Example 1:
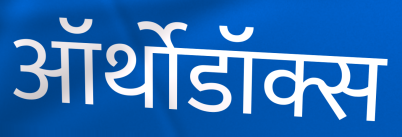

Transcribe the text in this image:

ऑर्थोडॉक्स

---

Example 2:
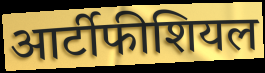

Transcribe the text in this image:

आर्टीफीशियल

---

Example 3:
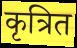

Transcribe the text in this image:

कृत्रित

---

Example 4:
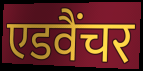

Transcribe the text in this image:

एडवैंचर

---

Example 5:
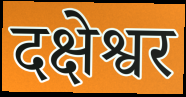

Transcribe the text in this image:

दक्षेश्वर